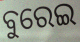
ବୁରେଇ